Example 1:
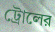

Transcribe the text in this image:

ট্রোলের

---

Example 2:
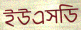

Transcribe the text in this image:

ইউএসডি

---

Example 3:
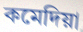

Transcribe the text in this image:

কমেদিয়া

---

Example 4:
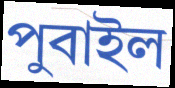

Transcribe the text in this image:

পুবাইল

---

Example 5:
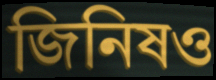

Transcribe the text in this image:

জিনিষও